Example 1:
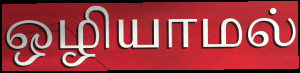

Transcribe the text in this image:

ஒழியாமல்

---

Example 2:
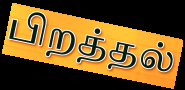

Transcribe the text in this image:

பிறத்தல்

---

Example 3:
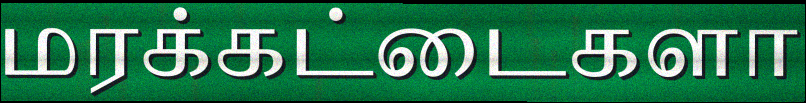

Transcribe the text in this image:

மரக்கட்டைகளா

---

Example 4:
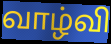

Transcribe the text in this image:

வாழ்வி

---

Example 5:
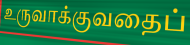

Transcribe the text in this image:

உருவாக்குவதைப்